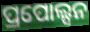
ପ୍ରପୋଲ୍ସନ